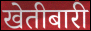
खेतीबारी